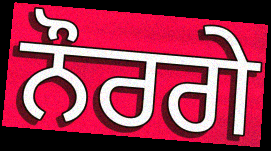
ਨੌਰਗੇ